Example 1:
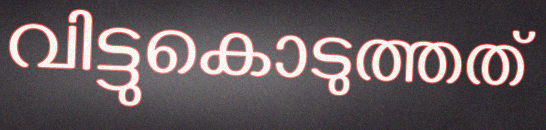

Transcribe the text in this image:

വിട്ടുകൊടുത്തത്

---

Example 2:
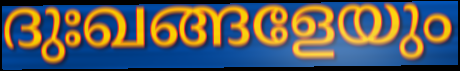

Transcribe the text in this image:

ദുഃഖങ്ങളേയും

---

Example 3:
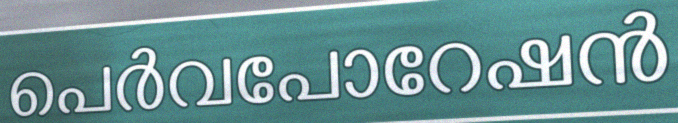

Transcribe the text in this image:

പെർവപോറേഷൻ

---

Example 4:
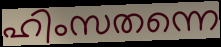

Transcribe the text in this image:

ഹിംസതന്നെ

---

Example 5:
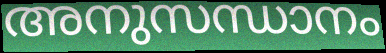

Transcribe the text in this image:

അനുസന്ധാനം